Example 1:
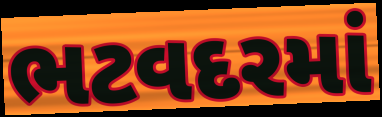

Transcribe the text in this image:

ભટવદરમાં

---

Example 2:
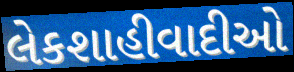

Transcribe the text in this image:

લેકશાહીવાદીઓ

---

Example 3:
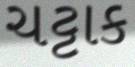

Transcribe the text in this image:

ચટ્ટાક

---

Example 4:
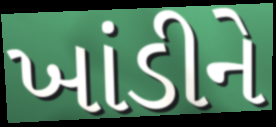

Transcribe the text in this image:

ખાંડીને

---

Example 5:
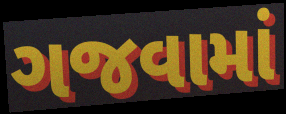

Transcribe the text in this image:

ગજવામાં